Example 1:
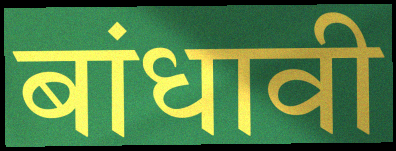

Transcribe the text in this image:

बांधावी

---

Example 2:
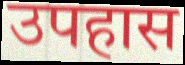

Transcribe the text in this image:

उपहास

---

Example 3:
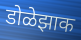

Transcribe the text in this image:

डोळेझाक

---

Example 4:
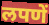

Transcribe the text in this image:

लपणें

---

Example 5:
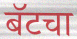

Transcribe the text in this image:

बॅटचा